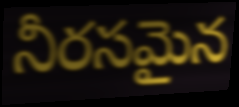
నీరసమైన